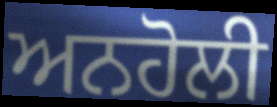
ਅਨਹੋਲੀ